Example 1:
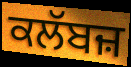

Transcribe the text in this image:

ਕਲੱਬਜ਼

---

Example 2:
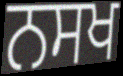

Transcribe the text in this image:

ਨਸਖ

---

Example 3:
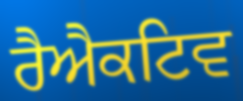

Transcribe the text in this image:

ਰੈਐਕਟਿਵ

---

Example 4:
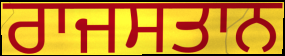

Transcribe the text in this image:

ਰਾਜਸਤਾਨ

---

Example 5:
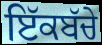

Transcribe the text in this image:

ਇੱਕਬੱਚੇ